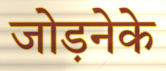
जोड़नेके